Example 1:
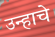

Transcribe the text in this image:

उन्हाचे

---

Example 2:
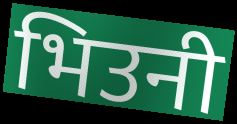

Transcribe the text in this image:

भिउनी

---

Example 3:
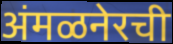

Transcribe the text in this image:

अंमळनेरची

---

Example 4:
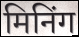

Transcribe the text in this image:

मिनिंग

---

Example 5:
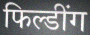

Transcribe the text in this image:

फिल्डींग